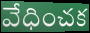
వేధించక